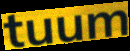
tuum